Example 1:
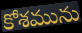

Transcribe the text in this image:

కోశమును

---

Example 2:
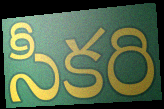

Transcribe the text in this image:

సీకరి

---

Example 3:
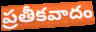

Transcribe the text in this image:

ప్రతీకవాదం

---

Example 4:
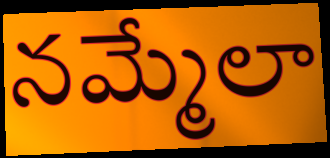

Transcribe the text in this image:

నమ్మేలా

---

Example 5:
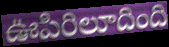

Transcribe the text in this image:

ఊపిరిలూదింది